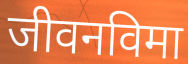
जीवनविमा